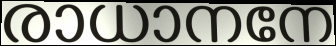
രാധാനനേ